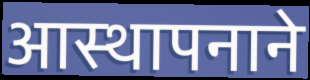
आस्थापनाने